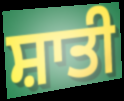
ਸ਼ਾਤੀ